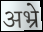
अभ्रे